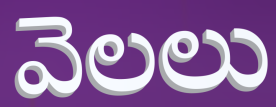
వెలలు